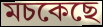
মচকেছে